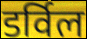
डर्विल